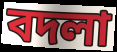
বদলা